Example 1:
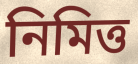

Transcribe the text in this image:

নিমিত্ত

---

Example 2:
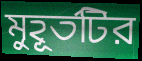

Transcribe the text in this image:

মুহূর্তটির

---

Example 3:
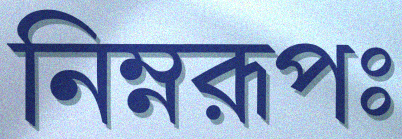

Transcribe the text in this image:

নিম্নরূপঃ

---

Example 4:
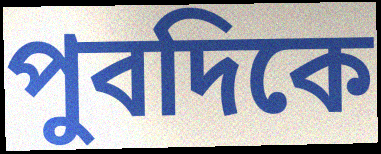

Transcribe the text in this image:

পুবদিকে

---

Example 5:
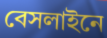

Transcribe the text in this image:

বেসলাইনে